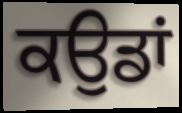
ਕਉਡਾਂ